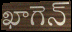
ఖాగెన్